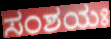
ಸಂಶಯಃ